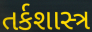
તર્કશાસ્ત્ર